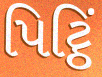
પિટ્ઠિં